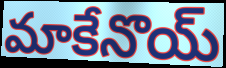
మాకేనొయ్